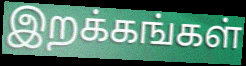
இறக்கங்கள்